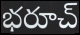
భరూచ్